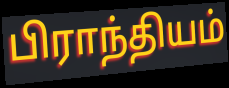
பிராந்தியம்